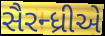
સૈરન્ધ્રીએ